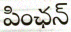
పింఛన్